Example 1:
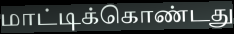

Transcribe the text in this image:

மாட்டிக்கொண்டது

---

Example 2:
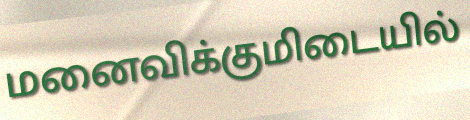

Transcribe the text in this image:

மனைவிக்குமிடையில்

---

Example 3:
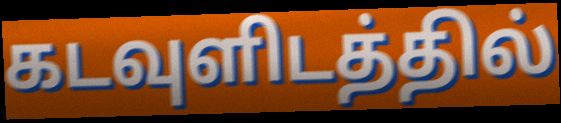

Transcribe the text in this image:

கடவுளிடத்தில்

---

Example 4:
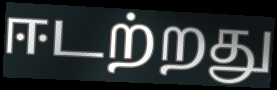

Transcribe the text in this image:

ஈடற்றது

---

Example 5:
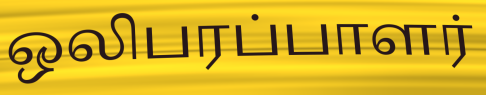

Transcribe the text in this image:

ஒலிபரப்பாளர்